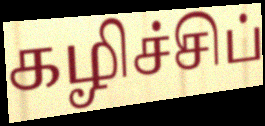
கழிச்சிப்